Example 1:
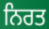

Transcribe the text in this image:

ਨਿਰਤ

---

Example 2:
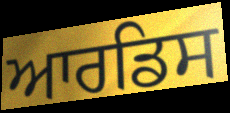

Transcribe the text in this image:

ਆਰਡਿਸ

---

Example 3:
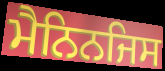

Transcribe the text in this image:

ਮੈਨਿਨਜਿਸ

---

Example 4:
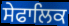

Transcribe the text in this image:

ਸੇਫਾਲਿਕ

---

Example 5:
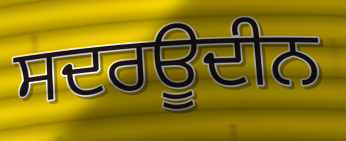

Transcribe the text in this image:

ਸਦਰਊਦੀਨ